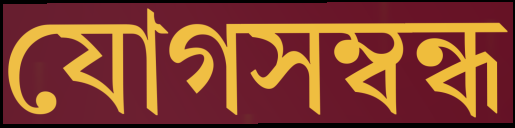
যোগসম্বন্ধ